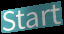
Start